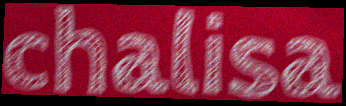
chalisa